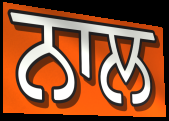
ਨਾਲ